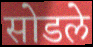
सोडले